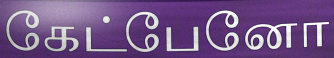
கேட்பேனோ